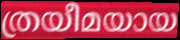
ത്രയീമയായ